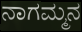
ನಾಗಮ್ಮನ